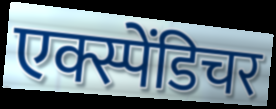
एक्स्पेंडिचर